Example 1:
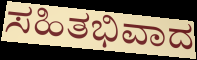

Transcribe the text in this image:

ಸಹಿತಭಿವಾದ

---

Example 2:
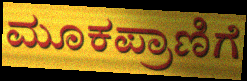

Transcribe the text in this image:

ಮೂಕಪ್ರಾಣಿಗೆ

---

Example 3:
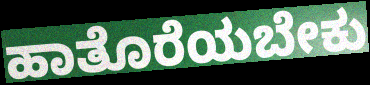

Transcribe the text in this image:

ಹಾತೊರೆಯಬೇಕು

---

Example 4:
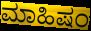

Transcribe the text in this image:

ಮಾಹಿಷಂ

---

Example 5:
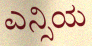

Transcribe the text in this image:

ಎನ್ಸಿಯ